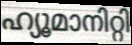
ഹ്യൂമാനിറ്റി